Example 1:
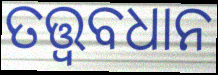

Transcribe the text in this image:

ତତ୍ତ୍ୱବଧାନ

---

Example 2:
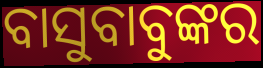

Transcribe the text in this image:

ବାସୁବାବୁଙ୍କର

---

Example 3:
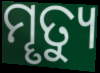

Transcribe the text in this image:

ମୄତ୍ୟୁ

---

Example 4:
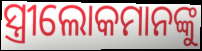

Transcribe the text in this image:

ସ୍ତ୍ରୀଲୋକମାନଙ୍କୁ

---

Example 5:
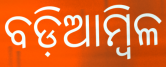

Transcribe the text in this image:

ବଡ଼ିଆମ୍ବିଳ